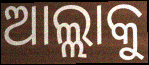
ଆଲ୍ଲାକୁ